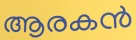
ആരകൻ